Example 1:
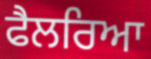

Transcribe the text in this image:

ਫੈਲਰਿਆ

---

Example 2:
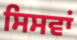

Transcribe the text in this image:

ਸਿਸਵਾਂ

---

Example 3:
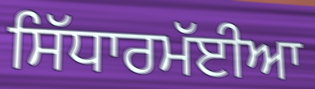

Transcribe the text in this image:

ਸਿੱਧਾਰਮੱਈਆ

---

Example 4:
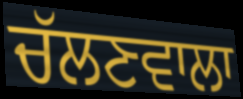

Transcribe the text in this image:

ਚੱਲਣਵਾਲਾ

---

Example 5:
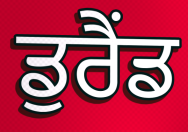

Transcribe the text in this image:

ਡੁਰੈਂਡ